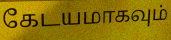
கேடயமாகவும்